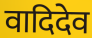
वादिदेव